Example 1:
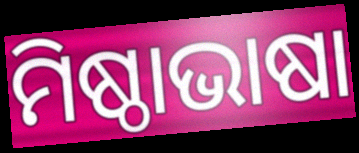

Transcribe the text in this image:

ମିଷ୍ଠାଭାଷା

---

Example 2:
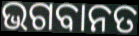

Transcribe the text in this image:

ଭଗବାନତ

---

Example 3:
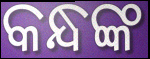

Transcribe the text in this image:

କନ୍ଧଙ୍କ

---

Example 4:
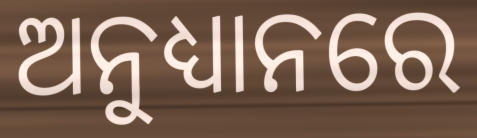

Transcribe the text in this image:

ଅନୁଧ୍ୟାନରେ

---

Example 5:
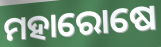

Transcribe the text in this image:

ମହାରୋଷେ